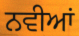
ਨਵੀਆਂ